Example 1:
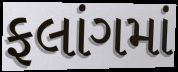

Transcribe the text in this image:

ફલાંગમાં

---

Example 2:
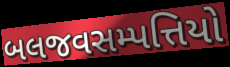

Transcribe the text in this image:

બલજવસમ્પત્તિયો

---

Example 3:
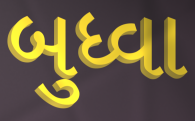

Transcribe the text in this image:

બુધ્વા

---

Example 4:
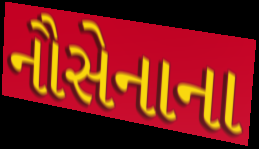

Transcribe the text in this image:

નૌસેનાના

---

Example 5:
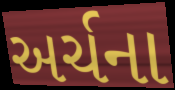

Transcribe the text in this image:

અર્ચના